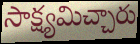
సాక్ష్యమిచ్చారు